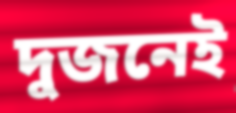
দুজনেই